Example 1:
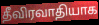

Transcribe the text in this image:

தீவிரவாதியாக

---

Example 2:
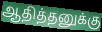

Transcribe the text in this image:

ஆதித்தனுக்கு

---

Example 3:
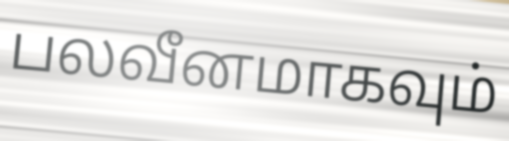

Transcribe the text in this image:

பலவீனமாகவும்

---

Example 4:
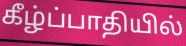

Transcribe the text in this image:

கீழ்ப்பாதியில்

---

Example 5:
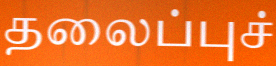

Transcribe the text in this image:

தலைப்புச்